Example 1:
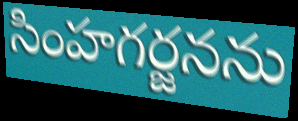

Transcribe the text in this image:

సింహగర్జనను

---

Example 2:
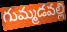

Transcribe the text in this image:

గుమ్మడవల్లి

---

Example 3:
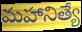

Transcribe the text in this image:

మహానిత్యే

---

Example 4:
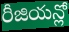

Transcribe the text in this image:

రీజియన్లో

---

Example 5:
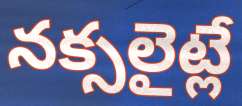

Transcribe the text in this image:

నక్సలైట్లే